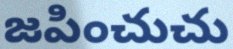
జపించుచు